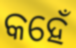
କହେଁ